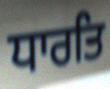
ਧਾਰਤਿ